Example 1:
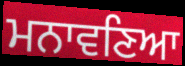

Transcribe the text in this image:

ਮਨਾਵਣਿਆ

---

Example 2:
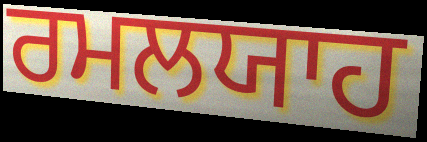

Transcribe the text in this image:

ਰਮਲਯਾਹ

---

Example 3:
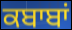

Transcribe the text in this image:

ਕਬਾਬਾਂ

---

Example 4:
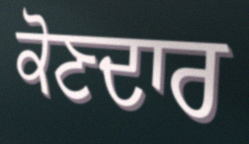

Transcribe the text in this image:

ਕੋਣਦਾਰ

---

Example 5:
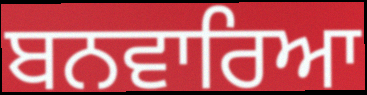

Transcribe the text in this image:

ਬਨਵਾਰਿਆ